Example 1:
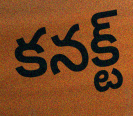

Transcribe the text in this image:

కనక్ట్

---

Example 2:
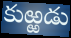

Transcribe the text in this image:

కుఱ్ఱడు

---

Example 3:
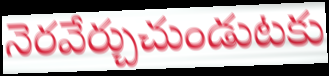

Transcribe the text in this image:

నెరవేర్చుచుండుటకు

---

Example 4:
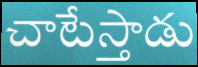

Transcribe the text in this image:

చాటేస్తాడు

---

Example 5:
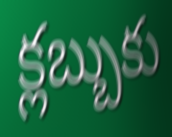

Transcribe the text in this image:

క్లబ్బుకు